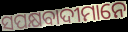
ସପକ୍ଷବାଦୀମାନେ